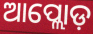
ଆପ୍ଲୋଡ଼